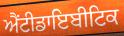
ਐਂਟੀਡਾਇਬੀਟਿਕ